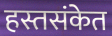
हस्तसंकेत